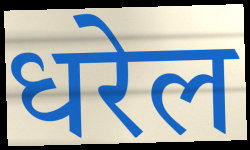
धरेल